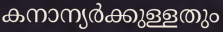
കനാന്യർക്കുള്ളതും